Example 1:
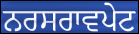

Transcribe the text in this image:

ਨਰਸਰਾਵਪੇਟ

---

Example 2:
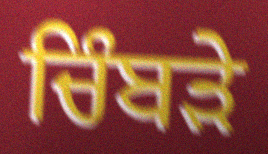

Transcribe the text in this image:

ਚਿੰਬਡ਼ੇ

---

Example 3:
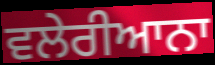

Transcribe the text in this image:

ਵਲੇਰੀਆਨਾ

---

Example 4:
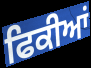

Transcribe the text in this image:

ਫਿਕੀਆਂ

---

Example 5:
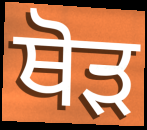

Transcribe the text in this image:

ਥੋੜ